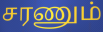
சரணும்